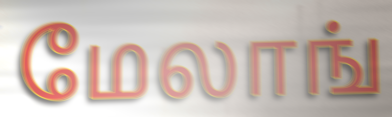
மேலாங்